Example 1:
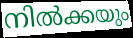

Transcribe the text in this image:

നിൽക്കയും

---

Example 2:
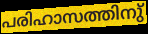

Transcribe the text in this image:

പരിഹാസത്തിനു്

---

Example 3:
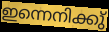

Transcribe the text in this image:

ഇന്നെനിക്കു്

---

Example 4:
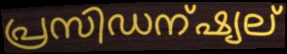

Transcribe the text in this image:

പ്രസിഡന്ഷ്യല്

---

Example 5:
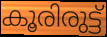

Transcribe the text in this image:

കൂരിരുട്ട്